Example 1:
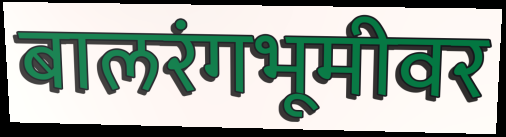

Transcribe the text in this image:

बालरंगभूमीवर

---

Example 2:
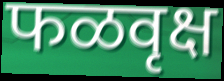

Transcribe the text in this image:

फळवृक्ष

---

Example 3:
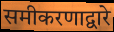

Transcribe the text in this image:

समीकरणाद्वारे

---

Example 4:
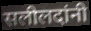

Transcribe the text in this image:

सलीलदांनी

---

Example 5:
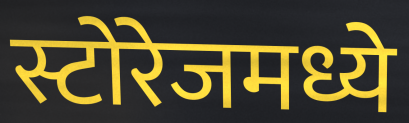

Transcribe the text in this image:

स्टोरेजमध्ये